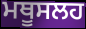
ਮਥੂਸਲਹ